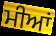
ਮੀਆਂ